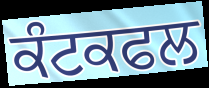
ਕੰਟਕਫਲ